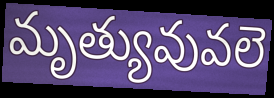
మృత్యువువలె